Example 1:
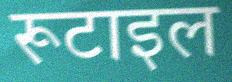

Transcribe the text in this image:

रूटाइल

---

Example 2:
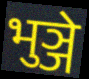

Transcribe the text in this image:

भुञ्जे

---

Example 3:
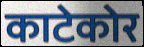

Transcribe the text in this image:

काटेकोर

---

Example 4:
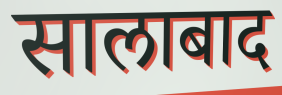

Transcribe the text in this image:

सालाबाद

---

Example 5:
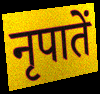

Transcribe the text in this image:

नृपातें